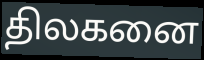
திலகனை